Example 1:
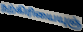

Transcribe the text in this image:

நற்கிரியையுஞ்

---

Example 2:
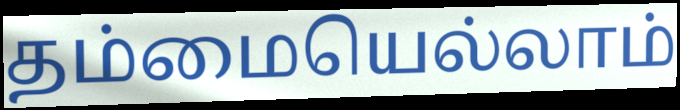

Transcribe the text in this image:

தம்மையெல்லாம்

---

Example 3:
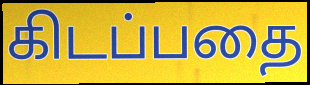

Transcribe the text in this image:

கிடப்பதை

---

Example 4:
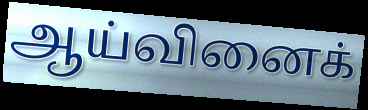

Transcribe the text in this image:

ஆய்வினைக்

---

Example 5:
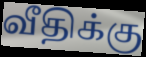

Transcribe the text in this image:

வீதிக்கு